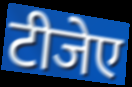
टीजेए